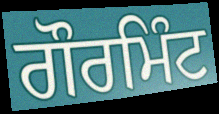
ਗੌਰਮਿੰਟ